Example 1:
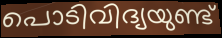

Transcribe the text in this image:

പൊടിവിദ്യയുണ്ട്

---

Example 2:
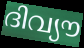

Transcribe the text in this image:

ദിവ്യൗ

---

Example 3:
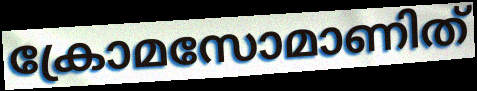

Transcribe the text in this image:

ക്രോമസോമാണിത്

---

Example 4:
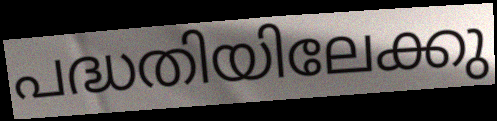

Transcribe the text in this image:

പദ്ധതിയിലേക്കു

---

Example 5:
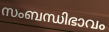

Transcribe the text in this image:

സംബന്ധിഭാവം